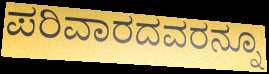
ಪರಿವಾರದವರನ್ನೂ